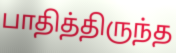
பாதித்திருந்த